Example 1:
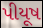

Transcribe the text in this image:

પીયૂષ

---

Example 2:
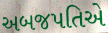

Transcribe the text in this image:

અબજપતિએ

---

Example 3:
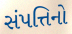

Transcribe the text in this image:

સંપત્તિનો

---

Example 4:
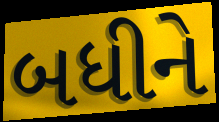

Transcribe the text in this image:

બધીને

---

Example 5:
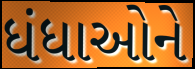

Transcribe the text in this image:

ધંધાઓને